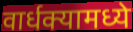
वार्धक्यामध्ये